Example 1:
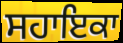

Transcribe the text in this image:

ਸਹਾਇਕਾ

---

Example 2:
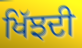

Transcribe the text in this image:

ਖਿੱਝਦੀ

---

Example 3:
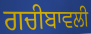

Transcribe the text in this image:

ਗਚੀਬਾਵਲੀ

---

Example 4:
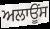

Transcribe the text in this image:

ਅਲਾਊੰਸ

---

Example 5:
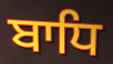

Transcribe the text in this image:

ਬਾਧਿ